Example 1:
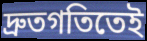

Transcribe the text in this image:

দ্রুতগতিতেই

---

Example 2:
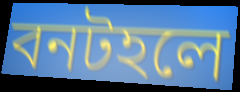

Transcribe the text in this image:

বনটহলে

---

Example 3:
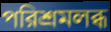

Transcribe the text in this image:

পরিশ্রমলব্ধ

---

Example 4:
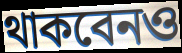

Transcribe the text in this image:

থাকবেনও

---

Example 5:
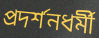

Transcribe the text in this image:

প্রদর্শনধর্মী